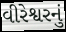
વીરેશ્વરનું